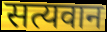
सत्यवान